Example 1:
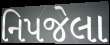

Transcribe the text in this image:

નિપજેલા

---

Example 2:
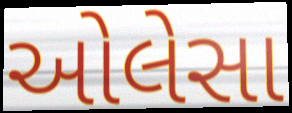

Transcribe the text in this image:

ઓલેસા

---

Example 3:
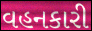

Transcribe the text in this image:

વહનકારી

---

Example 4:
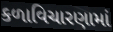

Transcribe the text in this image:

કળાવિચારણામાં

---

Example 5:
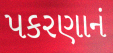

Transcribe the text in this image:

પકરણાનં